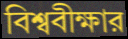
বিশ্ববীক্ষার